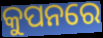
କୁପନରେ